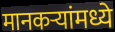
मानकऱ्यांमध्ये